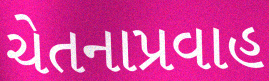
ચેતનાપ્રવાહ